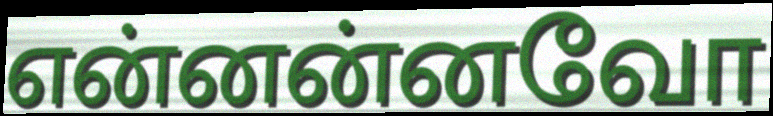
என்னன்னவோ